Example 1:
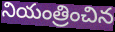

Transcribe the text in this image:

నియంత్రించిన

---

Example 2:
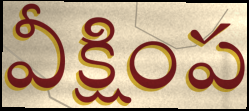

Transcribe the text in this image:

వీక్షింప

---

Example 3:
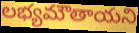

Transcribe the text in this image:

లభ్యమౌతాయని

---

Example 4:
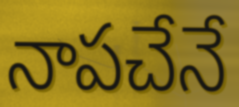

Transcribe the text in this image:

నాపచేనే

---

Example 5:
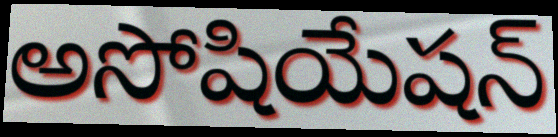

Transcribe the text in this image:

అసోషియేషన్